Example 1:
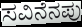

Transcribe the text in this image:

ಸವಿನೆನಪು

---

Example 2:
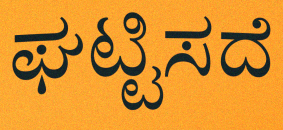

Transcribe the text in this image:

ಘಟ್ಟಿಸದೆ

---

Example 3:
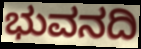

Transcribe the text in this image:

ಭುವನದಿ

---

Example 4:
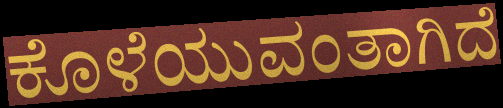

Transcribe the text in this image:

ಕೊಳೆಯುವಂತಾಗಿದೆ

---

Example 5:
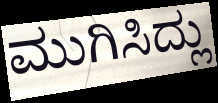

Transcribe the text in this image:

ಮುಗಿಸಿದ್ಲು